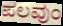
ಪಲವುಂ